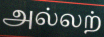
அல்லற்